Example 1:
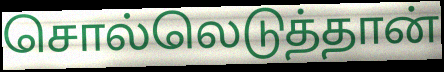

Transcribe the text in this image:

சொல்லெடுத்தான்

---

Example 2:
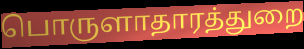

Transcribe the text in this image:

பொருளாதாரத்துறை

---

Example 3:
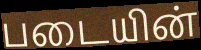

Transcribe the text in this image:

படையின்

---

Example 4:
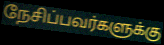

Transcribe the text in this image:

நேசிப்பவர்களுக்கு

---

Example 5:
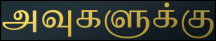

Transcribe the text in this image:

அவுகளுக்கு